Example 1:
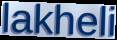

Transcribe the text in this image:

lakheli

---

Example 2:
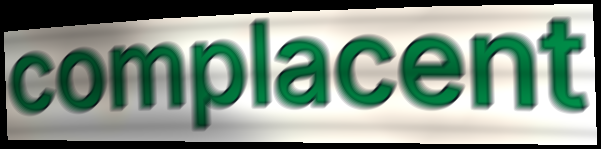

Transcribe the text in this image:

complacent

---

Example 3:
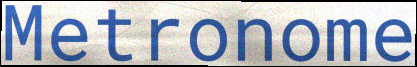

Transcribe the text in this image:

Metronome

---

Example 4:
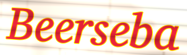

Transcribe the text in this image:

Beerseba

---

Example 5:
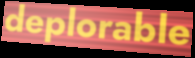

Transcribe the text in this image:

deplorable